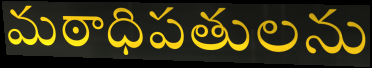
మఠాధిపతులను